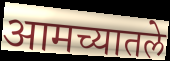
आमच्यातले